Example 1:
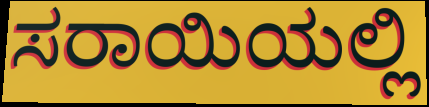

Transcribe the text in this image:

ಸರಾಯಿಯಲ್ಲಿ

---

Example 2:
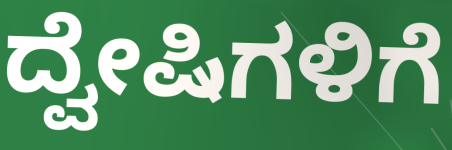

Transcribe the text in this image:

ದ್ವೇಷಿಗಳಿಗೆ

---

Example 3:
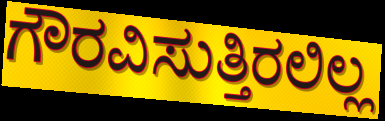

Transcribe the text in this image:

ಗೌರವಿಸುತ್ತಿರಲಿಲ್ಲ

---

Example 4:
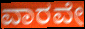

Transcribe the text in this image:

ವಾರವೇ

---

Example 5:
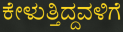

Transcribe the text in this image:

ಕೇಳುತ್ತಿದ್ದವಳಿಗೆ